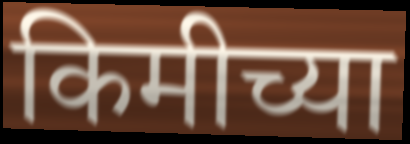
किमीच्या